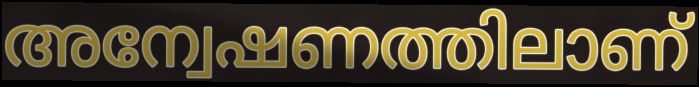
അന്വേഷണത്തിലാണ്